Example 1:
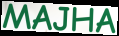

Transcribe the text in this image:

MAJHA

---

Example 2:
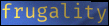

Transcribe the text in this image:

frugality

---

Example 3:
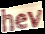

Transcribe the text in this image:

hev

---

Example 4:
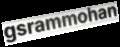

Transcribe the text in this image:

gsrammohan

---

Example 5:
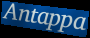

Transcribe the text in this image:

Antappa